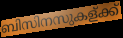
ബിസിനസുകള്ക്ക്